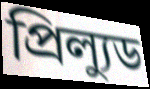
প্রিল্যুড